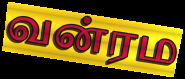
வன்ரம